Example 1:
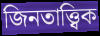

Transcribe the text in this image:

জিনতাত্ত্বিক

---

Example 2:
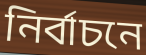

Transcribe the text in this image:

নির্বাচনে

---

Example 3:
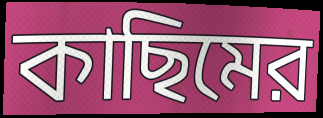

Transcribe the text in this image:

কাছিমের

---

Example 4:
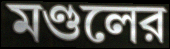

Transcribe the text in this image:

মণ্ডলের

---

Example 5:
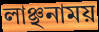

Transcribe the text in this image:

লাঞ্ছনাময়